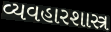
વ્યવહારશાસ્ત્ર